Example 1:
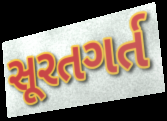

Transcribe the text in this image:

સૂરતગર્ત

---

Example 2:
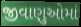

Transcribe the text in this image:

જીવાણુઓમાં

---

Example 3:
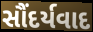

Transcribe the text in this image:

સૌંદર્યવાદ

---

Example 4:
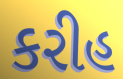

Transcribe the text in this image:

કરીહ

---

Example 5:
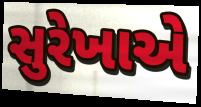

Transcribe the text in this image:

સુરેખાએ